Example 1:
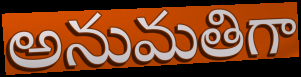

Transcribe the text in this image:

అనుమతిగా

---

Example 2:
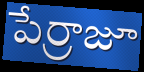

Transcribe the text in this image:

పేర్రాజూ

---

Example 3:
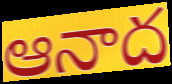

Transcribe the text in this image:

ఆనాద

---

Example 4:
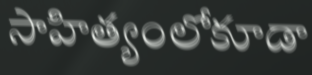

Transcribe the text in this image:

సాహిత్యంలోకూడా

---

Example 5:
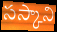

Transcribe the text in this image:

సస్కాని